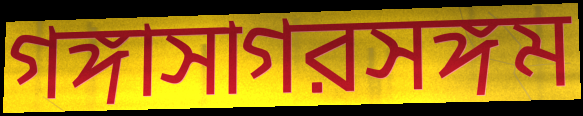
গঙ্গাসাগরসঙ্গম